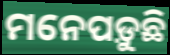
ମନେପଡ଼ୁଛି